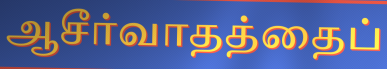
ஆசீர்வாதத்தைப்